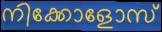
നിക്കോളോസ്